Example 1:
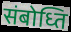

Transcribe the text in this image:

संबोध्ति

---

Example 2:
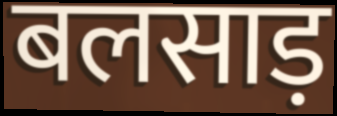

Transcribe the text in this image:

बलसाड़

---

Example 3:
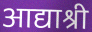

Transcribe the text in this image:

आद्याश्री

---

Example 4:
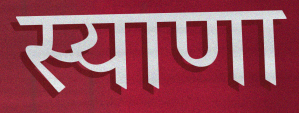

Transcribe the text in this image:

स्याणा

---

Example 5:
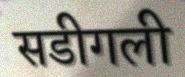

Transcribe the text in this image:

सडीगली